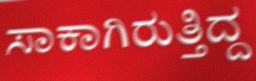
ಸಾಕಾಗಿರುತ್ತಿದ್ದ